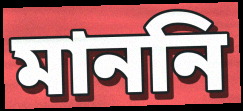
মাননি